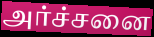
அர்ச்சனை